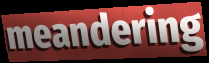
meandering